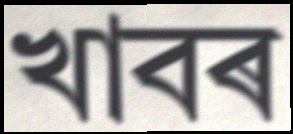
খাবৰ